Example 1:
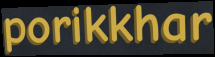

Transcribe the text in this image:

porikkhar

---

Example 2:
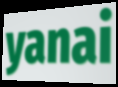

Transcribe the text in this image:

yanai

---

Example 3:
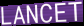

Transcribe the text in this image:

LANCET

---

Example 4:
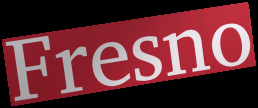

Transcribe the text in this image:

Fresno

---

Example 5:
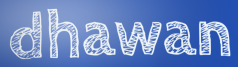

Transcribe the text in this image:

dhawan